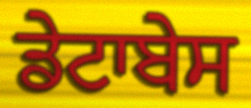
ਡੇਟਾਬੇਸ